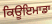
ਕਿਊਇਮਾਡਾ